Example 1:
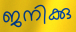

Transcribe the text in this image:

ജനിക്കു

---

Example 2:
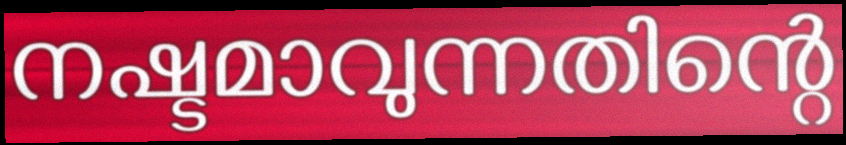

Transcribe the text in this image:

നഷ്ടമാവുന്നതിന്റെ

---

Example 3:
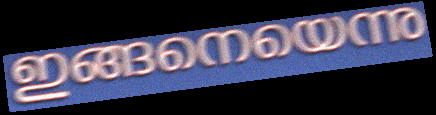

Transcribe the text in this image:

ഇങ്ങനെയെന്നു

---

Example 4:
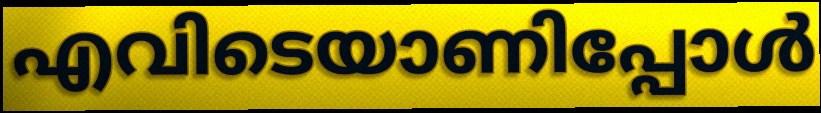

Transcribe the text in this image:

എവിടെയാണിപ്പോൾ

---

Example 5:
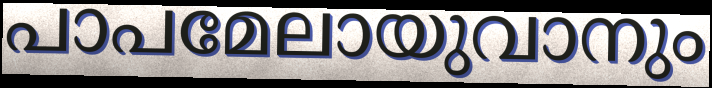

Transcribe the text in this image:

പാപമേലായുവാനും